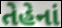
તેહેનાં